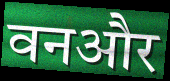
वनऔर